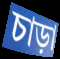
চাড়া